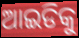
ଆଇଡିକୁ